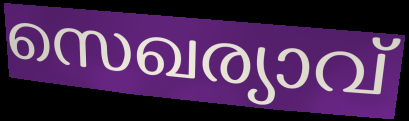
സെഖര്യാവ്